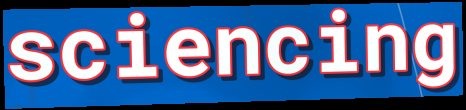
sciencing